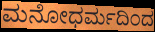
ಮನೋಧರ್ಮದಿಂದ